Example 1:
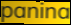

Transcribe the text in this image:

panina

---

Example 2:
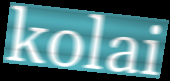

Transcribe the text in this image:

kolai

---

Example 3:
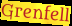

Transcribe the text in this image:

Grenfell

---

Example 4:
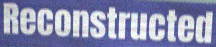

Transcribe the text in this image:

Reconstructed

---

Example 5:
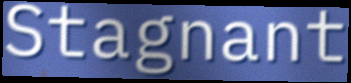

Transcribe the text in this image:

Stagnant